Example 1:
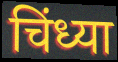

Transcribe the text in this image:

चिंध्या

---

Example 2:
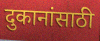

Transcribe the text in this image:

दुकानांसाठी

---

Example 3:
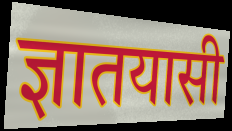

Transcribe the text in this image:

ज्ञातयासी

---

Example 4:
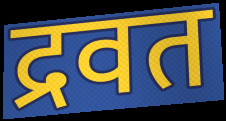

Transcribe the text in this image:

द्रवत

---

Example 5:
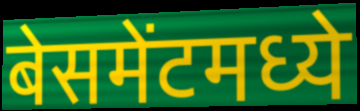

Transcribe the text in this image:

बेसमेंटमध्ये